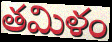
తమిళం